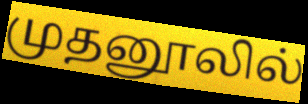
முதனூலில்